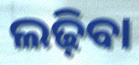
ଲଢ଼ିବା